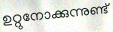
ഉറ്റുനോക്കുന്നുണ്ട്